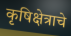
कृषिक्षेत्राचे